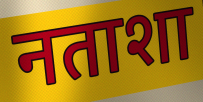
नताशा